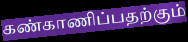
கண்காணிப்பதற்கும்